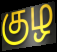
குழ